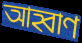
আহ্বাণ